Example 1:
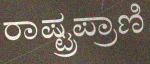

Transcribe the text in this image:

ರಾಷ್ಟ್ರಪ್ರಾಣಿ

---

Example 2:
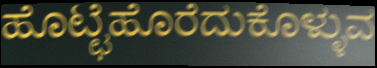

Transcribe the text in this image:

ಹೊಟ್ಟೆಹೊರೆದುಕೊಳ್ಳುವ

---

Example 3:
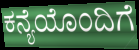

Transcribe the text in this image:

ಕನ್ಯೆಯೊಂದಿಗೆ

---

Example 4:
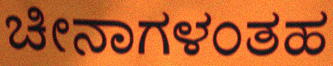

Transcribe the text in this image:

ಚೀನಾಗಳಂತಹ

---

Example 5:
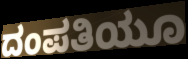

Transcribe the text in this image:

ದಂಪತಿಯೂ